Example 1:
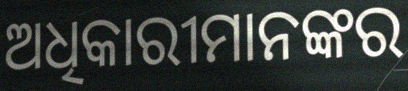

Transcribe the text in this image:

ଅଧିକାରୀମାନଙ୍କର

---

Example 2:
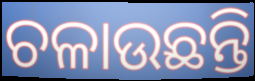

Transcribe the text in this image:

ଚଳାଉଛନ୍ତି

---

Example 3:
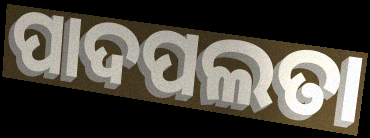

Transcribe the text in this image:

ପାଦପଲତା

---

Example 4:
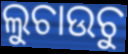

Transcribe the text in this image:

ଲୁଚାଉଚୁ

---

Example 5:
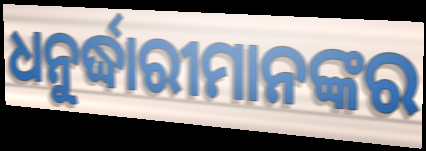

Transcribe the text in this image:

ଧନୁର୍ଦ୍ଧାରୀମାନଙ୍କର